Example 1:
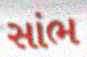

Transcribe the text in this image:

સાંભ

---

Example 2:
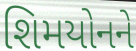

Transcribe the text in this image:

શિમયોનને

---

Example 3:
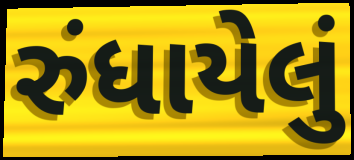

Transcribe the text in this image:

રુંધાયેલું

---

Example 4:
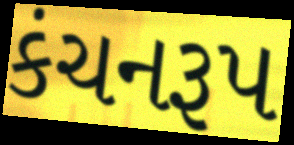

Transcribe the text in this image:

કંચનરૂપ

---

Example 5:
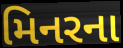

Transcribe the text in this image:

મિનરના